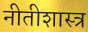
नीतीशास्त्र